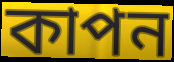
কাপন